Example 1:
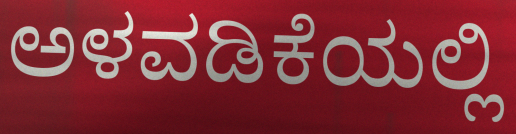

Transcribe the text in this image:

ಅಳವಡಿಕೆಯಲ್ಲಿ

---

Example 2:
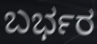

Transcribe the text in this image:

ಬರ್ಭರ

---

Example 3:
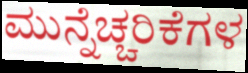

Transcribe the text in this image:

ಮುನ್ನೆಚ್ಚರಿಕೆಗಳ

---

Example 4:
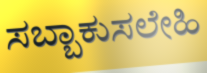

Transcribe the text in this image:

ಸಬ್ಬಾಕುಸಲೇಹಿ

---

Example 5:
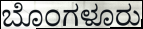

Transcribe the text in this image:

ಬೊಂಗಳೂರು